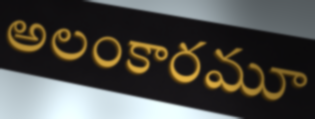
అలంకారమూ